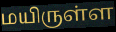
மயிருள்ள